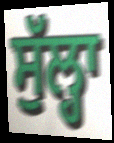
ਸੁੱਲ੍ਹਾ